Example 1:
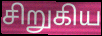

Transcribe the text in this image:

சிறுகிய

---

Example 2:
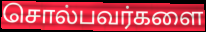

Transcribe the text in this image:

சொல்பவர்களை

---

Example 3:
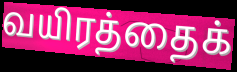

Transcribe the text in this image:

வயிரத்தைக்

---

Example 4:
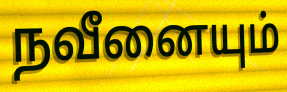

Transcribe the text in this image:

நவீனையும்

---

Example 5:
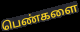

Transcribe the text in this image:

பெண்களை